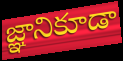
జ్ఞానికూడా